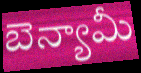
బెన్యామీ